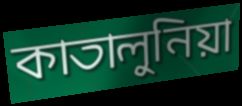
কাতালুনিয়া